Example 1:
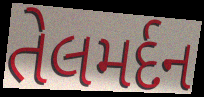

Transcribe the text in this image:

તેલમર્દન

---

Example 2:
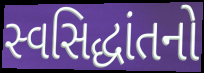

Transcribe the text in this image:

સ્વસિદ્ધાંતનો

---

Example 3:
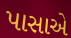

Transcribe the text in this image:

પાસાએ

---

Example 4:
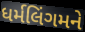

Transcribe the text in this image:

ધર્મલિંગમને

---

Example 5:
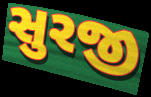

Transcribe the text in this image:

સુરજી